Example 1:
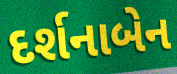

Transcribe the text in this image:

દર્શનાબેન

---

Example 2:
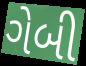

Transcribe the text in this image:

ગેબી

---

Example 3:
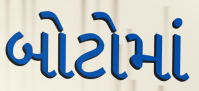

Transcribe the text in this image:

બોટોમાં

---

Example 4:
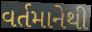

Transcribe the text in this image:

વર્તમાનેથી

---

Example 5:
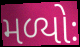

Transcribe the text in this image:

મળ્યોઃ